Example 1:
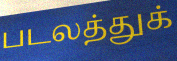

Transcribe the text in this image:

படலத்துக்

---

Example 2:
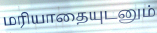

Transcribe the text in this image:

மரியாதையுடனும்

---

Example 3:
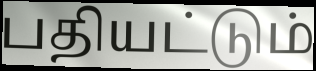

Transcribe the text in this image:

பதியட்டும்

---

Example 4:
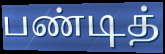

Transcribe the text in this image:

பண்டித்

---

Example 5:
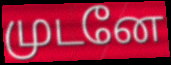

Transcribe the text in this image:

முடனே